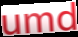
umd